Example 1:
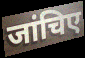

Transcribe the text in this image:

जांचिए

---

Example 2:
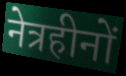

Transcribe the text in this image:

नेत्रहीनों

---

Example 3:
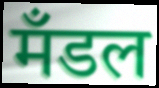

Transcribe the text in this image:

मँडल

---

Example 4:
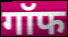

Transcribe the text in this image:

गॉफ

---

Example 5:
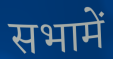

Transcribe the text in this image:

सभामें